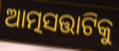
ଆତ୍ମସତ୍ତାଟିକୁ